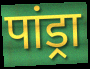
पांड्रा